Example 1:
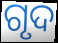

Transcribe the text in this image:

ଗୃଦ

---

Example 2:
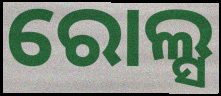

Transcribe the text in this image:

ରୋଲ୍ସ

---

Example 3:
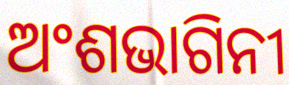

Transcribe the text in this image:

ଅଂଶଭାଗିନୀ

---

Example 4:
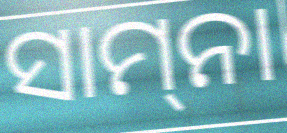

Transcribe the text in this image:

ସାମ୍‌ନା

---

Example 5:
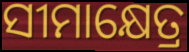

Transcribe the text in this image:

ସୀମାକ୍ଷେତ୍ର